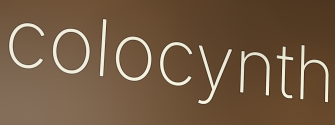
colocynth